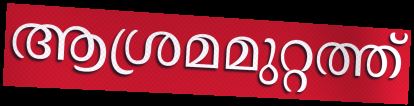
ആശ്രമമുറ്റത്ത്